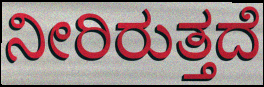
ನೀರಿರುತ್ತದೆ